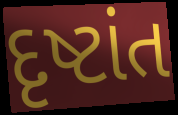
દૃષ્ટાંત